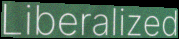
Liberalized